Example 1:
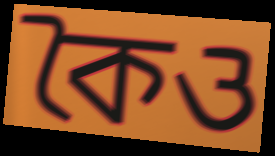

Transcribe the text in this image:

কৈও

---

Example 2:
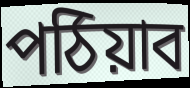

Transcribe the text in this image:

পঠিয়াব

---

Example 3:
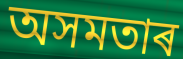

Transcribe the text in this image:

অসমতাৰ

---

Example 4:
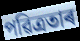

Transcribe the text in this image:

পৱিত্ৰতাৰ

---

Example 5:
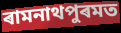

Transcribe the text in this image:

ৰামনাথপুৰমত